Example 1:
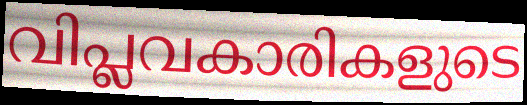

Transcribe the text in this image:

വിപ്ലവകാരികളുടെ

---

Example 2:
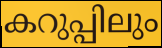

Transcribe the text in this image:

കറുപ്പിലും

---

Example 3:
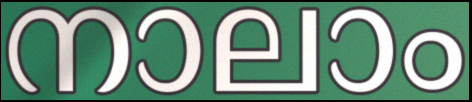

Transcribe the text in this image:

നാലാം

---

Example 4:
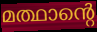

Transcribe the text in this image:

മത്ഥാന്റെ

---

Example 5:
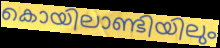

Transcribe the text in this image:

കൊയിലാണ്ടിയിലും